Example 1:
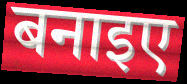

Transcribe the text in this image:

बनाइए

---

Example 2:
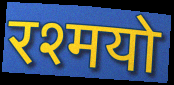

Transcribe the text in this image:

रश्मयो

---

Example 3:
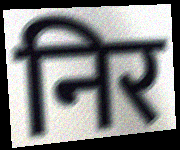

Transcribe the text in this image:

निर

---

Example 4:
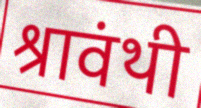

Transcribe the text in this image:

श्रावंथी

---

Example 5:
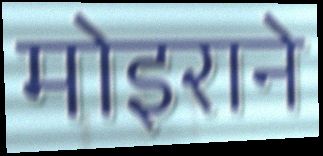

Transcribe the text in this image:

मोइराने